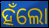
ହଁଲୋ